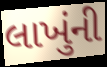
લાખુંની